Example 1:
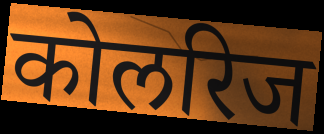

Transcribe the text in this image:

कोलरिज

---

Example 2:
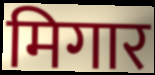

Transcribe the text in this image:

मिगार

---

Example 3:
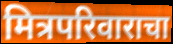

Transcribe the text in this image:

मित्रपरिवाराचा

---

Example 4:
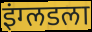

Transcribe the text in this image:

इंग्लडला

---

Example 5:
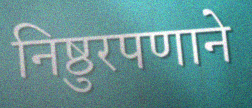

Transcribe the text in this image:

निष्ठुरपणाने